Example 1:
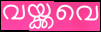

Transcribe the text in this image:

വയ്ക്കവെ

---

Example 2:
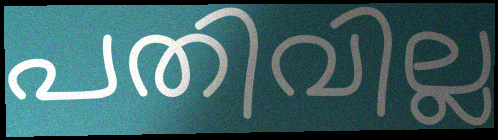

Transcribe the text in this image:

പതിവില്ല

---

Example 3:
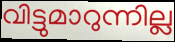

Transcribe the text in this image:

വിട്ടുമാറുന്നില്ല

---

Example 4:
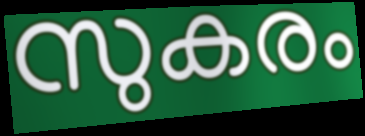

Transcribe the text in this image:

സുകരം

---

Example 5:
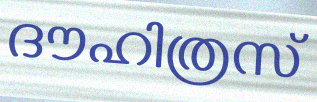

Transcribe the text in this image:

ദൗഹിത്രസ്